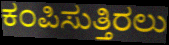
ಕಂಪಿಸುತ್ತಿರಲು